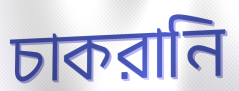
চাকরানি